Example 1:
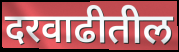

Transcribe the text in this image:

दरवाढीतील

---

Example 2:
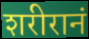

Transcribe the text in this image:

शरीरानं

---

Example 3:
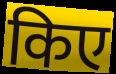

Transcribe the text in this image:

किए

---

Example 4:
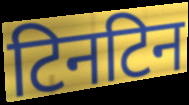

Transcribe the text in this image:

टिनटिन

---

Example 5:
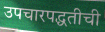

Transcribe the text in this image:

उपचारपद्धतीची